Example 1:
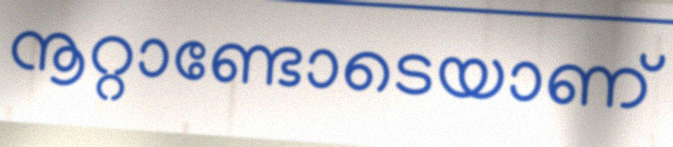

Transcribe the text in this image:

നൂറ്റാണ്ടോടെയാണ്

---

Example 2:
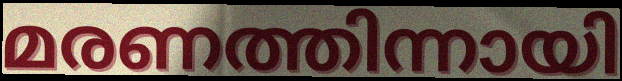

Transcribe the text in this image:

മരണത്തിന്നായി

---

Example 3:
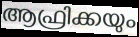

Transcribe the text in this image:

ആഫ്രിക്കയും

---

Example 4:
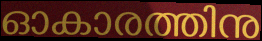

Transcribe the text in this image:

ഓകാരത്തിനു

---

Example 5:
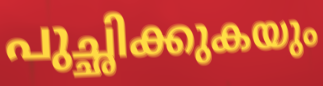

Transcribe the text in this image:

പുച്ഛിക്കുകയും